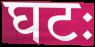
घटः